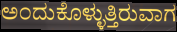
ಅಂದುಕೊಳ್ಳುತ್ತಿರುವಾಗ